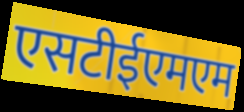
एसटीईएमएम